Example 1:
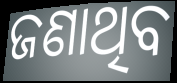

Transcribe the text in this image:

ଜଣାଥିବ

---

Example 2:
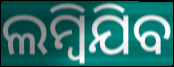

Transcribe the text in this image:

ଲମ୍ୱିଯିବ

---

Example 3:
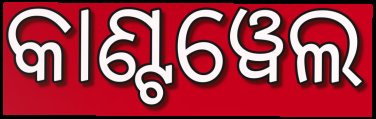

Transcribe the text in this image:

କାଣ୍ଟୱେଲ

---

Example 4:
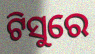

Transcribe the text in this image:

ଟିସୁରେ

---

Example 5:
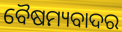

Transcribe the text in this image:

ବୈଷମ୍ୟବାଦର